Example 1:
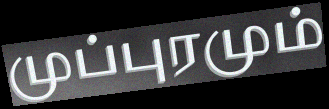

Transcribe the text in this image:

முப்புரமும்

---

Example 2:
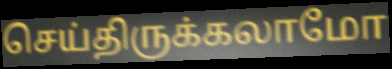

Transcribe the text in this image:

செய்திருக்கலாமோ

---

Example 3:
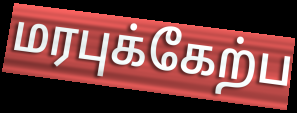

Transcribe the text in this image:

மரபுக்கேற்ப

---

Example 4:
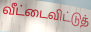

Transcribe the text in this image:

வீட்டைவிட்டுத்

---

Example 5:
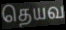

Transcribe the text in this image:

தெயவ